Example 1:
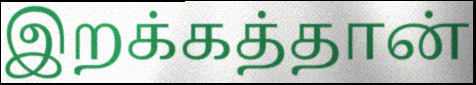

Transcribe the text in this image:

இறக்கத்தான்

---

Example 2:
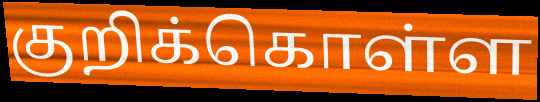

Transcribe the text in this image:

குறிக்கொள்ள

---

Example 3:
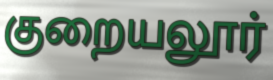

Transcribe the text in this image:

குறையலூர்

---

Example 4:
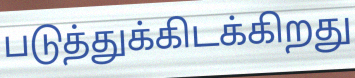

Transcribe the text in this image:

படுத்துக்கிடக்கிறது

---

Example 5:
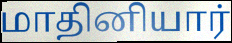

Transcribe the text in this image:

மாதினியார்